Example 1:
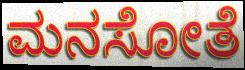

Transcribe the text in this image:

ಮನಸೋತೆ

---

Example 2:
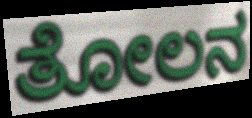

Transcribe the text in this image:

ತೋಲನ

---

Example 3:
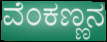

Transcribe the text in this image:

ವೆಂಕಣ್ಣನ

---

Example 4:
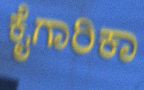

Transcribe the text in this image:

ಕೈಗಾರಿಕಾ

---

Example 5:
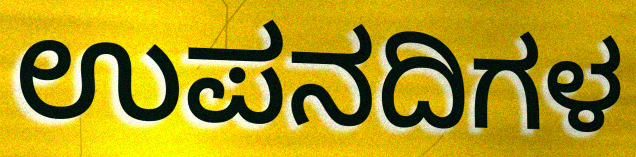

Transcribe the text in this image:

ಉಪನದಿಗಳ